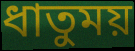
ধাতুময়